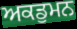
ਅਕਡੁਮਨ